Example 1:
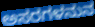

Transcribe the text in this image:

ಅಸರಗಳನುನ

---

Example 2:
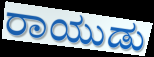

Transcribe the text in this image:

ರಾಯುಡು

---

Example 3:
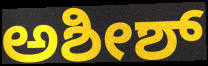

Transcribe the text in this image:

ಅಶೀಶ್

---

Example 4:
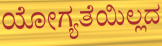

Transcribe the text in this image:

ಯೋಗ್ಯತೆಯಿಲ್ಲದ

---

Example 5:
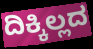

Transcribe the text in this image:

ದಿಕ್ಕಿಲ್ಲದ